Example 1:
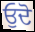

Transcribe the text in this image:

ਓੁਦੋ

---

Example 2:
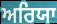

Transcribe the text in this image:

ਅਰਿਯਾ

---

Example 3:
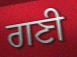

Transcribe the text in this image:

ਗਣੀ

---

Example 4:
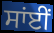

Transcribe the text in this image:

ਸਾਂਈਂ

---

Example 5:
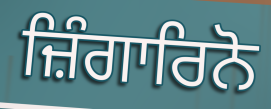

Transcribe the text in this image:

ਜ਼ਿੰਗਾਰਿਨੋ